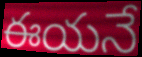
ఈయనే